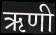
ऋणी